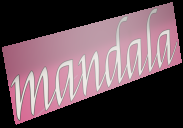
mandala